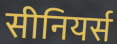
सीनियर्स